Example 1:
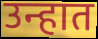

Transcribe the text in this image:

उन्हात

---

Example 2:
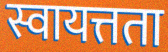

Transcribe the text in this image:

स्वायत्तता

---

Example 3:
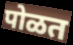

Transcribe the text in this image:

पोळत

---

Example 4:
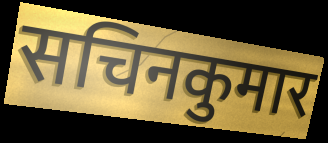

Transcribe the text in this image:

सचिनकुमार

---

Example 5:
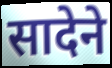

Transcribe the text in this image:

सादेने